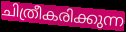
ചിത്രീകരിക്കുന്ന